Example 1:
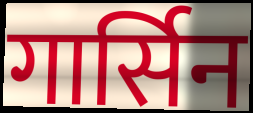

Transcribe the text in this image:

गार्सिन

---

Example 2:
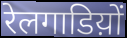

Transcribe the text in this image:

रेलगाडिय़ों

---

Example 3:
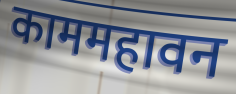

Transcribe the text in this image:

काममहावन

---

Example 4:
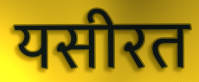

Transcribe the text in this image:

यसीरत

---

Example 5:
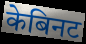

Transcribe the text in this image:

केबिनट